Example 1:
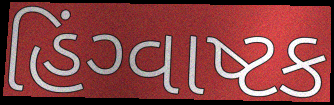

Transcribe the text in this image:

હિંગ્વાષ્ટક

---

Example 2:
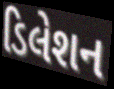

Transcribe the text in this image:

ડિલેશન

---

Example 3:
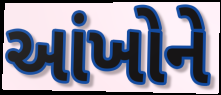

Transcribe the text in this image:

આંખોને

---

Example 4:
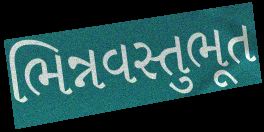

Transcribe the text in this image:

ભિન્નવસ્તુભૂત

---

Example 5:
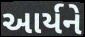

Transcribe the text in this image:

આર્યને